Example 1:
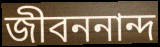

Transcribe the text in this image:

জীবননান্দ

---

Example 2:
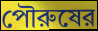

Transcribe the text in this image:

পৌরুষের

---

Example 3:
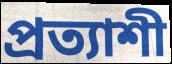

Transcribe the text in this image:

প্রত্যাশী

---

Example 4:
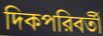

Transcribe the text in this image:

দিকপরিবর্তী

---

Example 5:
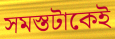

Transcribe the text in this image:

সমস্তটাকেই